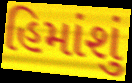
હિમાંશું